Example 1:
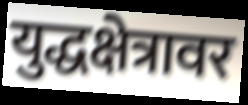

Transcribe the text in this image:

युद्धक्षेत्रावर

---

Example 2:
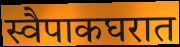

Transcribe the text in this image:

स्वैपाकघरात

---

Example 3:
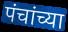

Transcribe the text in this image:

पंचांच्या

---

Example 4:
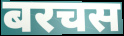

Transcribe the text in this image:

बरचस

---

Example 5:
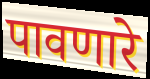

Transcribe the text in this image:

पावणारे